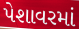
પેશાવરમાં